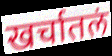
खर्चातलं